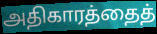
அதிகாரத்தைத்